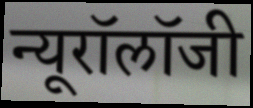
न्यूरॉलॉजी